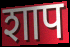
शाप